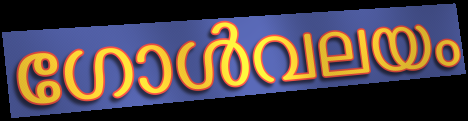
ഗോൾവലയം